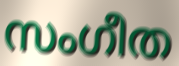
സംഗീത